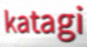
katagi